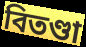
বিতণ্ডা